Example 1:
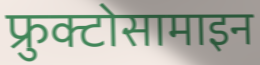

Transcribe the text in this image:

फ्रुक्टोसामाइन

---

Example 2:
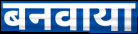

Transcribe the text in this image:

बनवाया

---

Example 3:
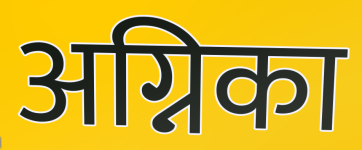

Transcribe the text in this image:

अग्निका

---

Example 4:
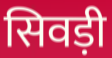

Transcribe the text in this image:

सिवड़ी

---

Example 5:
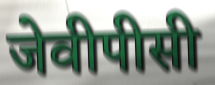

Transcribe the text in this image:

जेवीपीसी